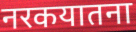
नरकयातना